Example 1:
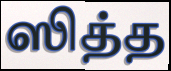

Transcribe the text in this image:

ஸித்த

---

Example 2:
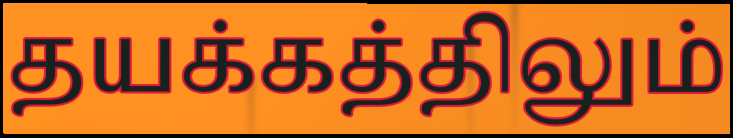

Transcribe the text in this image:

தயக்கத்திலும்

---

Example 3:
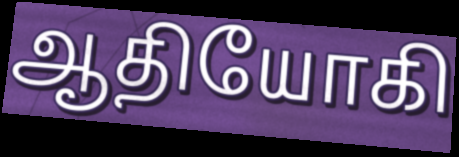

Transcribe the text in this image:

ஆதியோகி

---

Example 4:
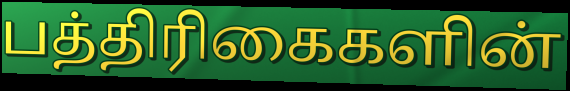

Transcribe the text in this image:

பத்திரிகைகளின்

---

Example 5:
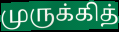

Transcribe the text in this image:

முருக்கித்